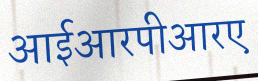
आईआरपीआरए